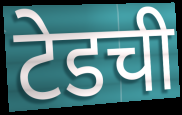
टेडची